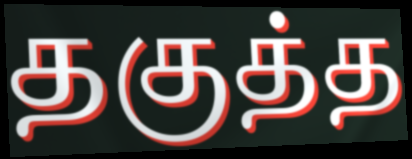
தகுத்த